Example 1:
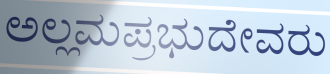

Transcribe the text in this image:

ಅಲ್ಲಮಪ್ರಭುದೇವರು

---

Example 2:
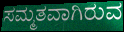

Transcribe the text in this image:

ಸಮ್ಮತವಾಗಿರುವ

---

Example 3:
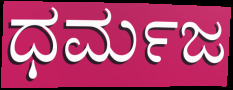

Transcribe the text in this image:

ಧರ್ಮಜ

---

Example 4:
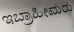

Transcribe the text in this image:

ಇಬ್ರಾಹೀಮರು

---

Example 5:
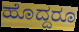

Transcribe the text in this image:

ಹೊದ್ದರೂ